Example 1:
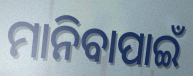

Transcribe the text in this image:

ମାନିବାପାଇଁ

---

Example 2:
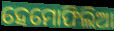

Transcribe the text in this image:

ହେମୋଫିଲିଆ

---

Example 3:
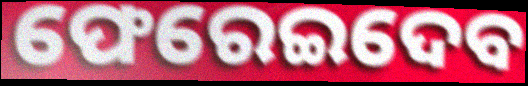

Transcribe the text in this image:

ଫେରେଇଦେବ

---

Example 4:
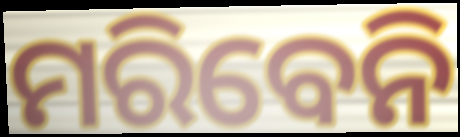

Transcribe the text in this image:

ମରିବେନି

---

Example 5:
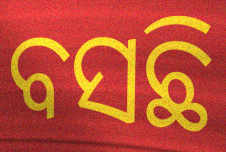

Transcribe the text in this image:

ବସଛି